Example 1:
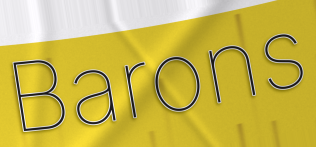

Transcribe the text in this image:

Barons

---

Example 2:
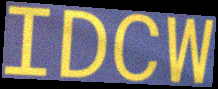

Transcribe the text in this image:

IDCW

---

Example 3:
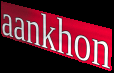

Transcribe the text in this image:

aankhon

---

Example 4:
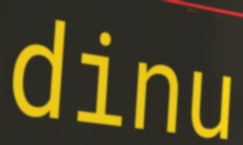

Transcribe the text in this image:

dinu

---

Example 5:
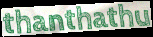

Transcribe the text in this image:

thanthathu